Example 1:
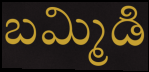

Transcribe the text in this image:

బమ్మిడి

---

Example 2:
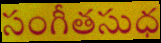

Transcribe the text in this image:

సంగీతసుధ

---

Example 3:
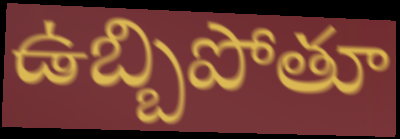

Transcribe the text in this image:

ఉబ్బిపోతూ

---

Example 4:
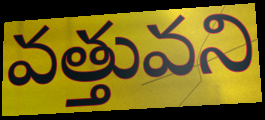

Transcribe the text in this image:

వత్తువని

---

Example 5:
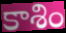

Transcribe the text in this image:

కాశిం